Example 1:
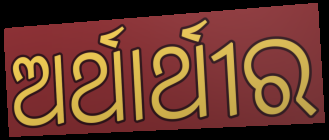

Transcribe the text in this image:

ଅର୍ଥାର୍ଥୀର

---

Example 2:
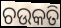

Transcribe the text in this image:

ଚଉକତି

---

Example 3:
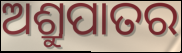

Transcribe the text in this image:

ଅଶ୍ରୁପାତର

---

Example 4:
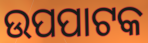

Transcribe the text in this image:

ଉପପାଟକ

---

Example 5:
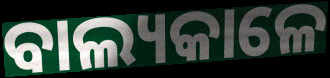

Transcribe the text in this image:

ବାଲ୍ୟକାଳେ